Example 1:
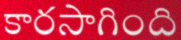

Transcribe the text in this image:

కారసాగింది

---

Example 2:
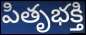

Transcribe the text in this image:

పితృభక్తి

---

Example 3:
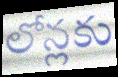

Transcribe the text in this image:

లోన్లకు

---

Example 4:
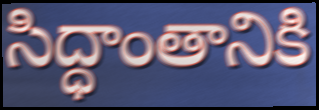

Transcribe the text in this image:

సిద్ధాంతానికి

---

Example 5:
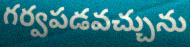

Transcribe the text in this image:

గర్వపడవచ్చును